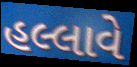
હલ્લાવે